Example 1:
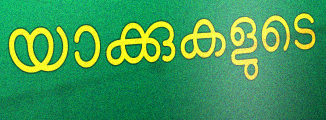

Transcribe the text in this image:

യാക്കുകളുടെ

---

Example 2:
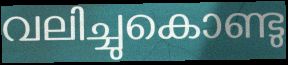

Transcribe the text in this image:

വലിച്ചുകൊണ്ടു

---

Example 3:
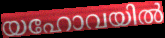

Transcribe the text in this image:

യഹോവയിൽ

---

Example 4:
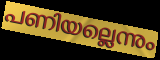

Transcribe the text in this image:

പണിയല്ലെന്നും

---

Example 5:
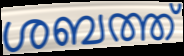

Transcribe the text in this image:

ശബത്ത്